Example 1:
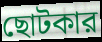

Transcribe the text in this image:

ছোটকার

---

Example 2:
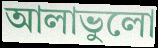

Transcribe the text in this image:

আলাভুলো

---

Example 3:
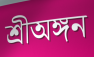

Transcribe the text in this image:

শ্রীঅঙ্গন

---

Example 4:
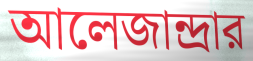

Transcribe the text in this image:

আলেজান্দ্রার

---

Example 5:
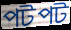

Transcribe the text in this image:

পটপট